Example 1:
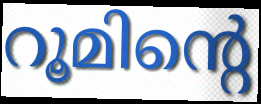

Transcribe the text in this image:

റൂമിന്റെ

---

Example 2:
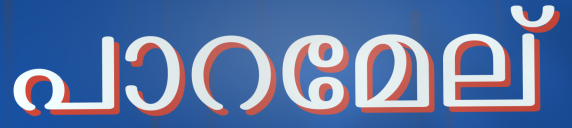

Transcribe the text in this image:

പാറമേല്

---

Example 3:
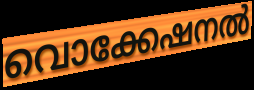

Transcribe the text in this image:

വൊക്കേഷനൽ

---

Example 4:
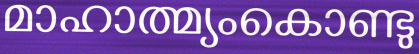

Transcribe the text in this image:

മാഹാത്മ്യംകൊണ്ടു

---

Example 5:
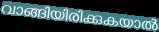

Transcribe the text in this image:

വാങ്ങിയിരിക്കുകയാൽ